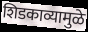
शिडकाव्यामुळे